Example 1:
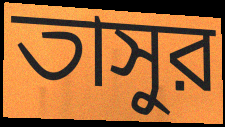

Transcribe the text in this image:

তাসুর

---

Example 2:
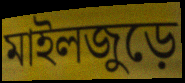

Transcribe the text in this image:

মাইলজুড়ে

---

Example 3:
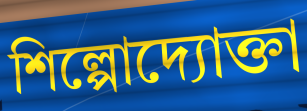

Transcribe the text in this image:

শিল্পোদ্যোক্তা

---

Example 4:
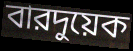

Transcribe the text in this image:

বারদুয়েক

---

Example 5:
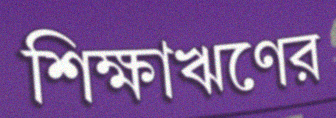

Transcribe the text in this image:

শিক্ষাঋণের